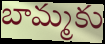
బామ్మకు